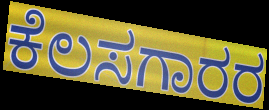
ಕೆಲಸಗಾರರ